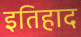
इतिहाद